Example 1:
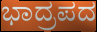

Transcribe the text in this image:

ಭಾದ್ರಪದ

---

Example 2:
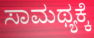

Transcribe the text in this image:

ಸಾಮಥ್ಯಕ್ಕೆ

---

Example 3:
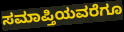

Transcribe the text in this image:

ಸಮಾಪ್ತಿಯವರೆಗೂ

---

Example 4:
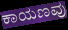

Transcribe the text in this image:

ಕಾಯಣವು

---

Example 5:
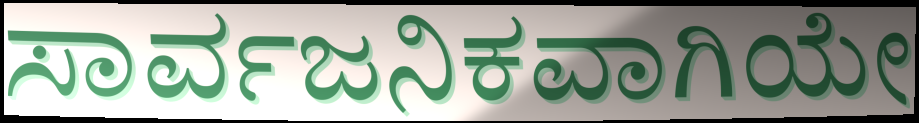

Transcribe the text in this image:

ಸಾರ್ವಜನಿಕವಾಗಿಯೇ